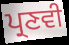
ਪ੍ਰਣਵੀ